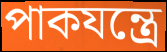
পাকযন্ত্রে